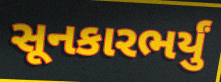
સૂનકારભર્યું